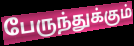
பேருந்துக்கும்